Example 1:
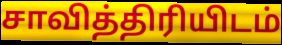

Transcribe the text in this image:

சாவித்திரியிடம்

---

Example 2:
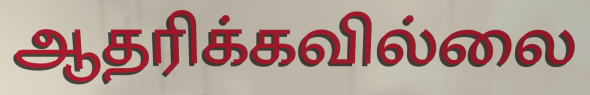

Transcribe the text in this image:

ஆதரிக்கவில்லை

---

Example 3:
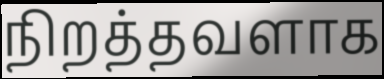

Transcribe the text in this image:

நிறத்தவளாக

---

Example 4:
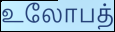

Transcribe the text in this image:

உலோபத்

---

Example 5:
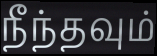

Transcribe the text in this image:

நீந்தவும்